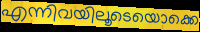
എന്നിവയിലൂടെയൊക്കെ